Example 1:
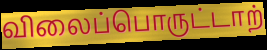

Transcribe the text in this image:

விலைப்பொருட்டாற்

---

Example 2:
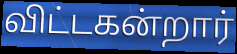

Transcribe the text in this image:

விட்டகன்றார்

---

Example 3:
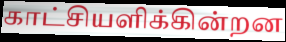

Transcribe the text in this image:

காட்சியளிக்கின்றன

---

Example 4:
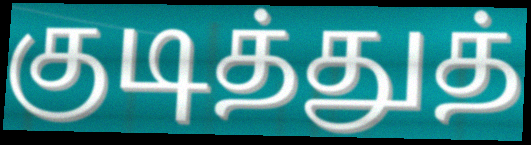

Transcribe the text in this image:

குடித்துத்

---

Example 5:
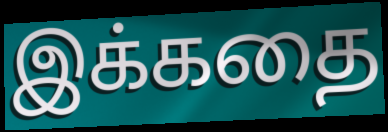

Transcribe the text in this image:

இக்கதை